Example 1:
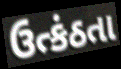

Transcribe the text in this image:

ઉત્કંઠતા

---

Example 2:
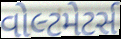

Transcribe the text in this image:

વોલ્ટમેટર્સ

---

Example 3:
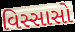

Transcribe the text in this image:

વિસ્સાસો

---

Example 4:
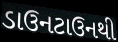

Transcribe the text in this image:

ડાઉનટાઉનથી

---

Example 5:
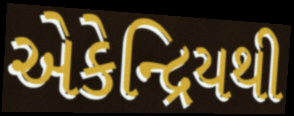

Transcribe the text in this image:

એકેન્દ્રિયથી